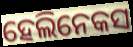
ହେଲିନେକସ